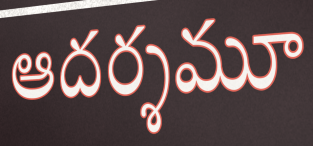
ఆదర్శమూ